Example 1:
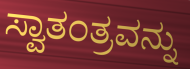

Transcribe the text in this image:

ಸ್ವಾತಂತ್ರವನ್ನು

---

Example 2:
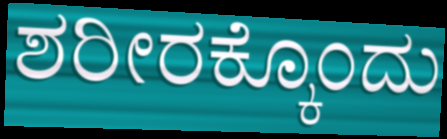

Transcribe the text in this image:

ಶರೀರಕ್ಕೊಂದು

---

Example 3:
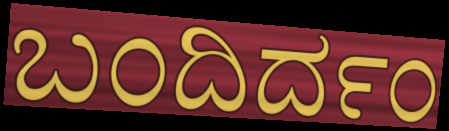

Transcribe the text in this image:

ಬಂದಿರ್ದಂ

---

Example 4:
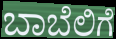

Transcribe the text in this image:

ಬಾಬೆಲಿಗೆ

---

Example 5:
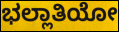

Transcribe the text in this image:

ಭಲ್ಲಾತಿಯೋ